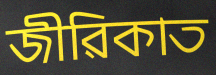
জীৱিকাত